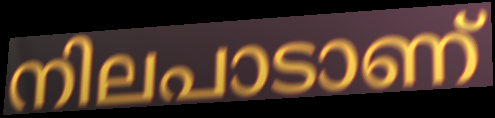
നിലപാടാണ്